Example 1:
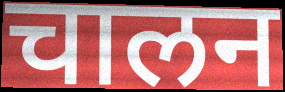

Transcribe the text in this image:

चालन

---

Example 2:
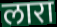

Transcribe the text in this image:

लारा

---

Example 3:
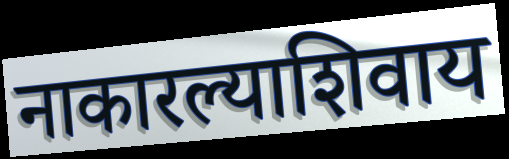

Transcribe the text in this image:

नाकारल्याशिवाय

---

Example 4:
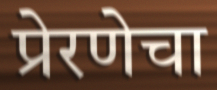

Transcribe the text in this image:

प्रेरणेचा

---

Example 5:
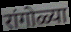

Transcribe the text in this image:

रांगोळ्या